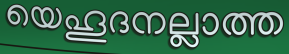
യെഹൂദനല്ലാത്ത